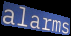
alarms